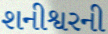
શનીશ્વરની